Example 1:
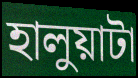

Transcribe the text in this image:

হালুয়াটা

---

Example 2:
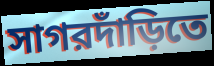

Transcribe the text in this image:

সাগরদাঁড়িতে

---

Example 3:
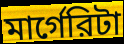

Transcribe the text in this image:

মার্গেরিটা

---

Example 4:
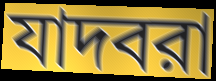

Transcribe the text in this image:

যাদবরা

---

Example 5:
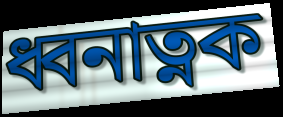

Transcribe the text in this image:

ধ্বনাত্নক